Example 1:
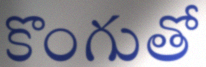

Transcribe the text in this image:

కొంగుతో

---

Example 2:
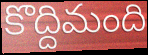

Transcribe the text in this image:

కొద్దిమంది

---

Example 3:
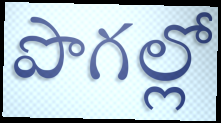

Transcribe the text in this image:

పొగల్లో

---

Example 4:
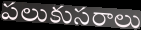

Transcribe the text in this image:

పలుకుసరాలు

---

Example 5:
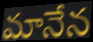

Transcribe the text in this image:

మానేన